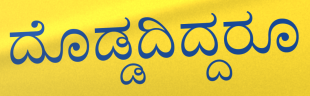
ದೊಡ್ಡದಿದ್ದರೂ